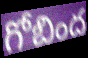
గోబింద